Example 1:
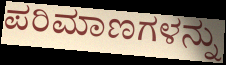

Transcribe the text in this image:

ಪರಿಮಾಣಗಳನ್ನು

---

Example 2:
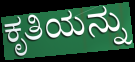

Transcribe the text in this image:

ಕೃತಿಯನ್ನು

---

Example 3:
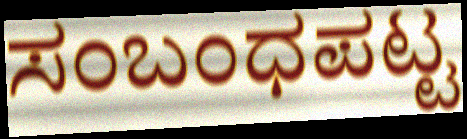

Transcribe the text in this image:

ಸಂಬಂಧಪಟ್ಟ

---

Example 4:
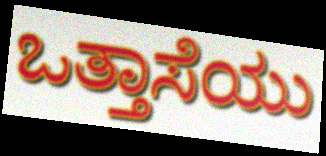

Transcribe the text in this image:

ಒತ್ತಾಸೆಯು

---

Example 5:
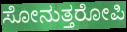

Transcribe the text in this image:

ಸೋನುತ್ತರೋಪಿ